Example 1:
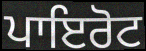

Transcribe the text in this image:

ਪਾਇਰੋਟ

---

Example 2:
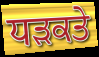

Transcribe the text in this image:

ਧੜਕਤੇ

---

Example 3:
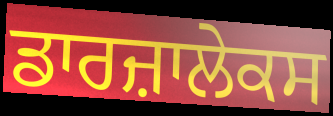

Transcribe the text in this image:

ਡਾਰਜ਼ਾਲੇਕਸ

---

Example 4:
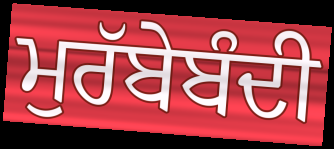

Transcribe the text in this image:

ਮੁਰੱਬੇਬੰਦੀ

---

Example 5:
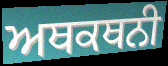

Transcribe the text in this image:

ਅਥਕਥਨੀ